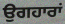
ਉਗਹਾਰਾਂ